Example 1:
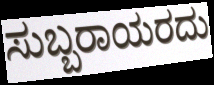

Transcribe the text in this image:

ಸುಬ್ಬರಾಯರದು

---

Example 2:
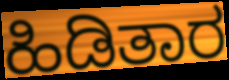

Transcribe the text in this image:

ಹಿಡಿತಾರ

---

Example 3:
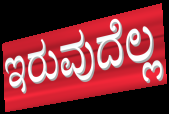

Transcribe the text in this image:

ಇರುವುದೆಲ್ಲ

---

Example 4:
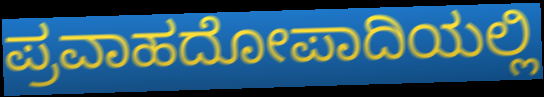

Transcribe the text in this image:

ಪ್ರವಾಹದೋಪಾದಿಯಲ್ಲಿ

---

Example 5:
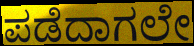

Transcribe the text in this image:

ಪಡೆದಾಗಲೇ